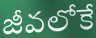
జీవలోకే